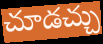
చూడచ్చు